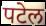
पटेल